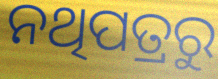
ନଥିପତ୍ରରୁ